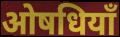
ओषधियाँ